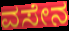
ವಸೇನ